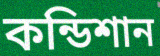
কন্ডিশান